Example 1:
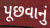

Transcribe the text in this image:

પૂછવાનું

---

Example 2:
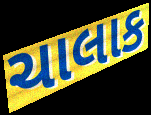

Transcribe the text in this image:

ચાલાક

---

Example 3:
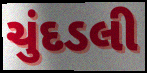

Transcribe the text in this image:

ચુંદડલી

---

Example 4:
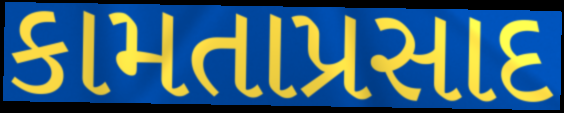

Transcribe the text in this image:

કામતાપ્રસાદ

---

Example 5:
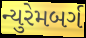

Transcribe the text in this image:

ન્યુરેમબર્ગ